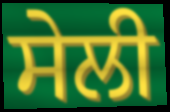
ਸੇਲੀ